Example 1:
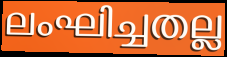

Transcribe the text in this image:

ലംഘിച്ചതല്ല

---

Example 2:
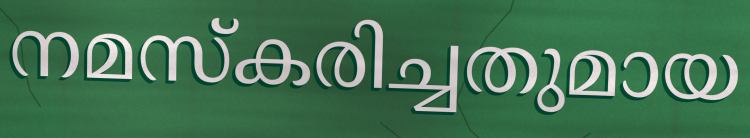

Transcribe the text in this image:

നമസ്കരിച്ചതുമായ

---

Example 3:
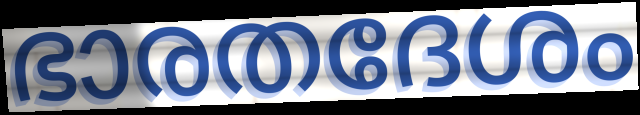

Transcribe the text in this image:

ഭാരതദേശം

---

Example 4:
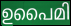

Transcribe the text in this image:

ഉപൈമി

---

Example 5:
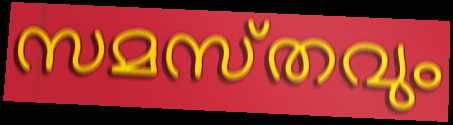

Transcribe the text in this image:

സമസ്‌തവും